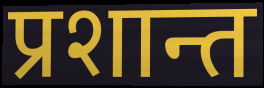
प्रशान्त